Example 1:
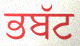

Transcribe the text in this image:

ਭਬੱਟ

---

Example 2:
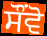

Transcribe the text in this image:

ਸੌਂਵੋ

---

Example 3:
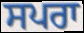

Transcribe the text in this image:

ਸਪਰਾ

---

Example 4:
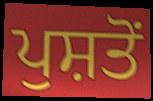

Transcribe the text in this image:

ਪੁਸ਼ਤੋਂ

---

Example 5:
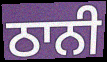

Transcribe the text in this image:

ਠਾਨੀ